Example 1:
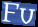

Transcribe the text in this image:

Fu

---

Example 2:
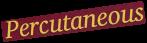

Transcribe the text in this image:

Percutaneous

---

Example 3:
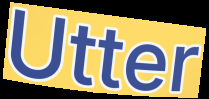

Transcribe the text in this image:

Utter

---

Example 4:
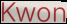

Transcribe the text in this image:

Kwon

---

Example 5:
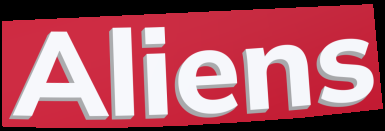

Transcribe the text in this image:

Aliens